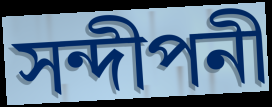
সন্দীপনী